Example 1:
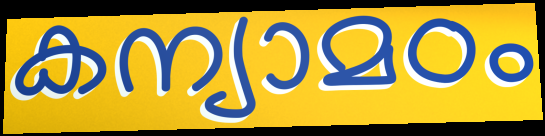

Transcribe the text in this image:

കന്യാമഠം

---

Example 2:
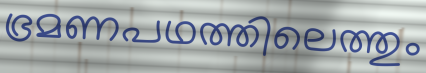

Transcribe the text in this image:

ഭ്രമണപഥത്തിലെത്തും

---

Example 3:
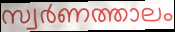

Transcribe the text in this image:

സ്വർണത്താലം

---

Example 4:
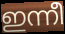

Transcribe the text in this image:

ഇന്നീ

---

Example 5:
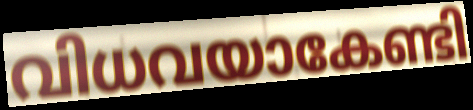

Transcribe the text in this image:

വിധവയാകേണ്ടി